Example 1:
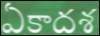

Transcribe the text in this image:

ఏకాదశ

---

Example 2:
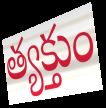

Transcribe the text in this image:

త్యక్తుం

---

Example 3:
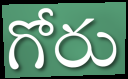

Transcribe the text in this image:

గోరు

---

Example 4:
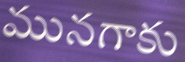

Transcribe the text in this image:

మునగాకు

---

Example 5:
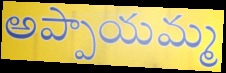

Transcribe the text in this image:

అప్పాయమ్మ